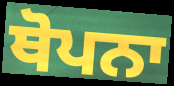
ਥੋਪਨਾ